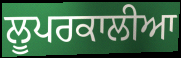
ਲੂਪਰਕਾਲੀਆ